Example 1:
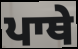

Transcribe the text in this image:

ਪਾਥੇ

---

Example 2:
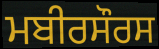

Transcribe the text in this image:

ਮਬੀਰਸੌਰਸ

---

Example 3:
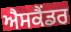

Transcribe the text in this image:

ਐਸਕੈਂਡਰ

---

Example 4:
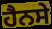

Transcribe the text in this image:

ਹੈਨਸੇ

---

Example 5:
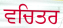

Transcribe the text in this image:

ਵਚਿਤਰ